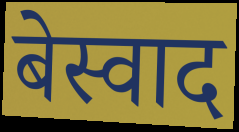
बेस्वाद